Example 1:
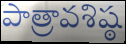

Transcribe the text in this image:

పాత్రావశిష్ఠ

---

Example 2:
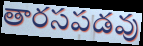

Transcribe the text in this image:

తారసపడవు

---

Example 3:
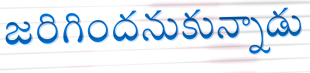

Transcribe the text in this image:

జరిగిందనుకున్నాడు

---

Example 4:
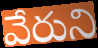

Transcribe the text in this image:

వేరుని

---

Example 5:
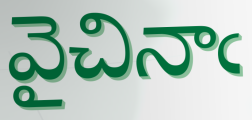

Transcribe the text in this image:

వైచినాఁ